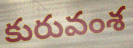
కురువంశ